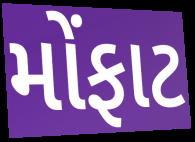
મોંફાટ